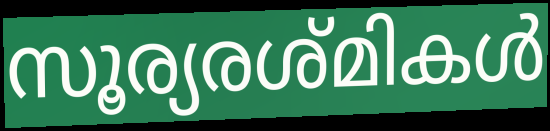
സൂര്യരശ്മികൾ